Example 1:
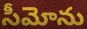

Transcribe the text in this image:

సీమోను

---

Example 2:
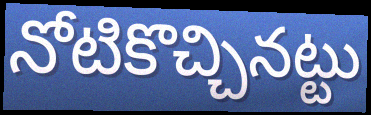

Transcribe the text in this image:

నోటికొచ్చినట్టు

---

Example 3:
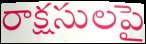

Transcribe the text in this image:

రాక్షసులపై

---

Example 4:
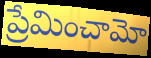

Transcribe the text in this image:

ప్రేమించామో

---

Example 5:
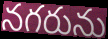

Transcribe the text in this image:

నగరును